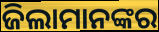
ଜିଲାମାନଙ୍କର